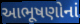
આભૂષણોનાં